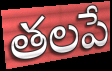
తలపే